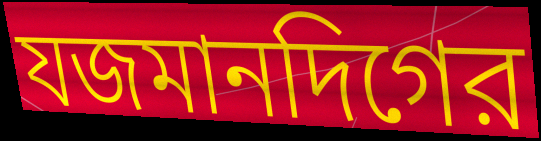
যজমানদিগের